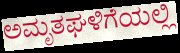
ಅಮೃತಘಳಿಗೆಯಲ್ಲಿ